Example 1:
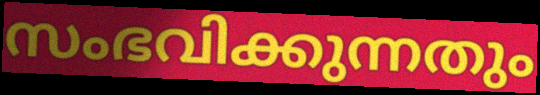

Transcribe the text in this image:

സംഭവിക്കുന്നതും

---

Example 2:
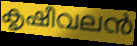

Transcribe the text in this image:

കൃഷീവലൻ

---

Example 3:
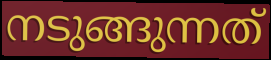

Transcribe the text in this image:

നടുങ്ങുന്നത്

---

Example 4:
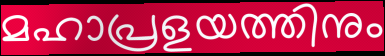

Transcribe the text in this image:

മഹാപ്രളയത്തിനും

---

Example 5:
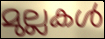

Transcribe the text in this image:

മുല്ലകൾ